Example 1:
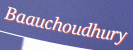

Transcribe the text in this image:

Baauchoudhury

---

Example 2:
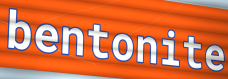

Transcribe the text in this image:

bentonite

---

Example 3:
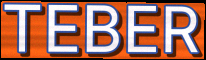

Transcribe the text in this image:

TEBER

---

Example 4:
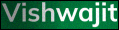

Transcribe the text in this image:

Vishwajit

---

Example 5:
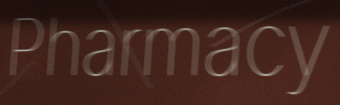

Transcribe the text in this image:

Pharmacy